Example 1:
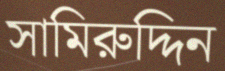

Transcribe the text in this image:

সামিরুদ্দিন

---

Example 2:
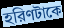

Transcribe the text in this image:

হরিণটাকে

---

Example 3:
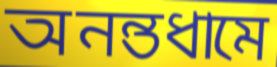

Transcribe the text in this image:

অনন্তধামে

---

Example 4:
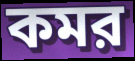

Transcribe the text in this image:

কমর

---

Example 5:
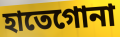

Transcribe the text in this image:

হাতেগোনা